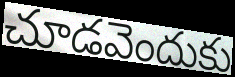
చూడవెందుకు